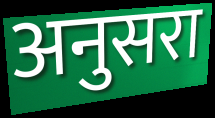
अनुसरा